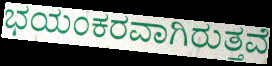
ಭಯಂಕರವಾಗಿರುತ್ತವೆ